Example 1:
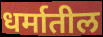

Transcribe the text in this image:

धर्मातील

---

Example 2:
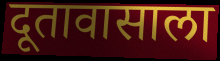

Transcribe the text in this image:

दूतावासाला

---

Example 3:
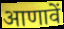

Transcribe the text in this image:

आणावें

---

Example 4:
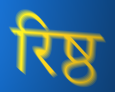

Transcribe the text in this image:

रिष्ठ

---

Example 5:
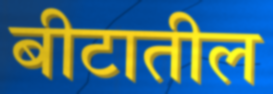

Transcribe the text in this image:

बीटातील